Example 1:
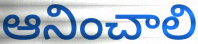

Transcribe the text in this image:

ఆనించాలి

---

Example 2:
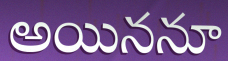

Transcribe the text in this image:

అయిననూ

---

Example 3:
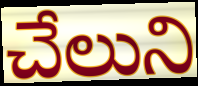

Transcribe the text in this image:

చేలుని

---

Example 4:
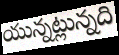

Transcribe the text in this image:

యున్నట్లున్నది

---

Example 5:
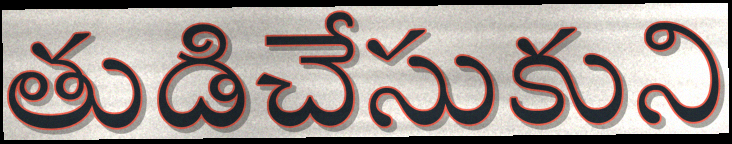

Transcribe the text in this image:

తుడిచేసుకుని